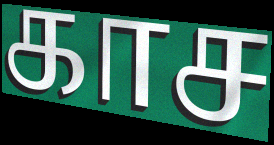
காச